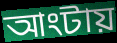
আংটায়